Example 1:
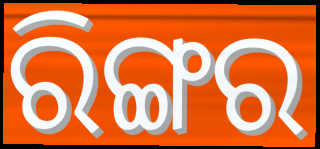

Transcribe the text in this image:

ରିଙ୍ଗର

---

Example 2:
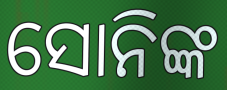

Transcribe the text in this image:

ସୋନିଙ୍କ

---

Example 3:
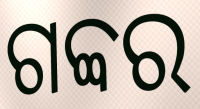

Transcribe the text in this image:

ଗବ୍ବର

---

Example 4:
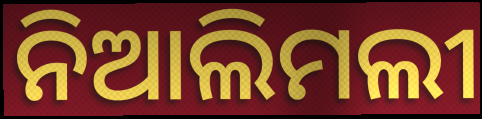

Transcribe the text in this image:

ନିଆଲିମଲୀ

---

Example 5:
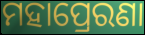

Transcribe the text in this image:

ମହାପ୍ରେରଣା